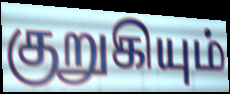
குறுகியும்